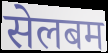
सेलबम